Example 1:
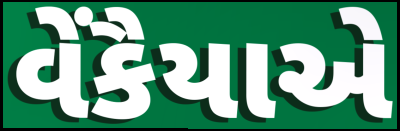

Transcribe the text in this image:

વેંકૈયાએ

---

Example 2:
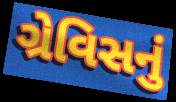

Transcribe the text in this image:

ગ્રેવિસનું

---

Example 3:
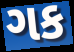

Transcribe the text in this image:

ગક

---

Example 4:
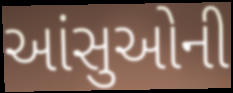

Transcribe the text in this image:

આંસુઓની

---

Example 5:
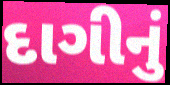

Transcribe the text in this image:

દાગીનું